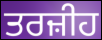
ਤਰਜ਼ੀਹ